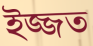
ইজ্জত